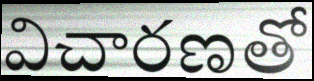
విచారణతో